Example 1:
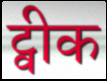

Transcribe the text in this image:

ट्वीक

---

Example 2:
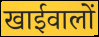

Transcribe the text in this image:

खाईवालों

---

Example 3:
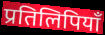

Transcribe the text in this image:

प्रतिलिपियाँ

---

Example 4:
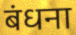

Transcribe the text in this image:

बंधना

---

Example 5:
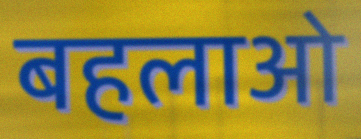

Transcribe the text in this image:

बहलाओ